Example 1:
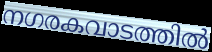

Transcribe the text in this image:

നഗരകവാടത്തിൽ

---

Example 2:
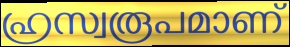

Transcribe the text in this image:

ഹ്രസ്വരൂപമാണ്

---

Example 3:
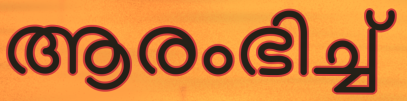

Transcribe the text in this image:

ആരംഭിച്ച്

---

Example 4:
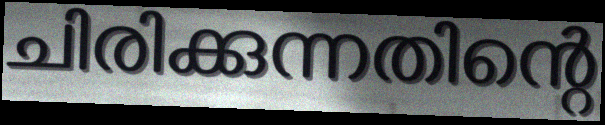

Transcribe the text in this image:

ചിരിക്കുന്നതിന്റെ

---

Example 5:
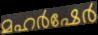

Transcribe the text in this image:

മഹർഷേർ